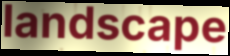
landscape